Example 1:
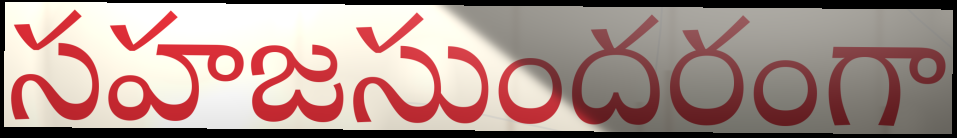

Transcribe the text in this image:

సహజసుందరంగా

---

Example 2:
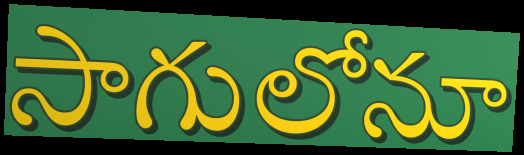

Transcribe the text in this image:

సాగులోనూ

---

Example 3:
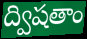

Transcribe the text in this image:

ద్విషతాం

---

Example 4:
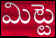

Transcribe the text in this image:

మిట్టె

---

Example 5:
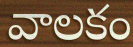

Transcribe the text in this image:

వాలకం